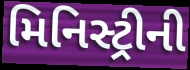
મિનિસ્ટ્રીની